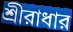
শ্রীরাধার